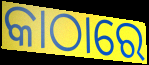
କାଠାରେ